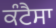
ਕੰਟੈਸਾ